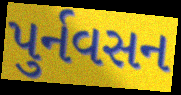
પુર્નવસન